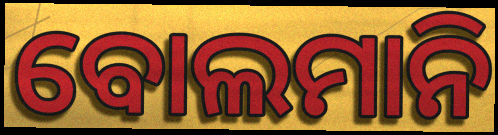
ବୋଲମାନି